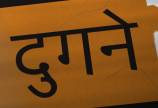
दुगने